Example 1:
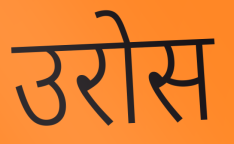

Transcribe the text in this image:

उरोस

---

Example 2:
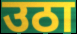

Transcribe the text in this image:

उठा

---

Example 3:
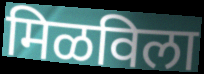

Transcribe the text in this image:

मिळविला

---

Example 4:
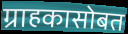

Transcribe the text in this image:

ग्राहकासोबत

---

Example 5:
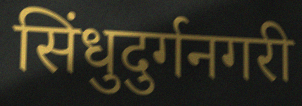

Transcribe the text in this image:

सिंधुदुर्गनगरी